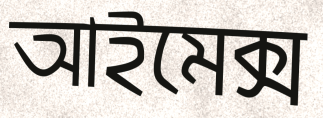
আইমেক্স